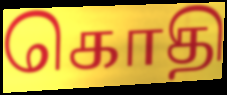
கொதி